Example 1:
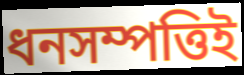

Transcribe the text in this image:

ধনসম্পত্তিই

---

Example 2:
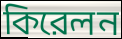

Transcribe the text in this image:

কিরেলন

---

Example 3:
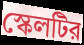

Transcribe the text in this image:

স্কেলটির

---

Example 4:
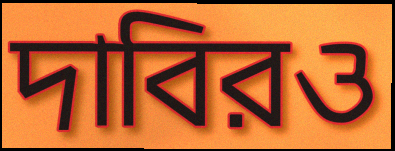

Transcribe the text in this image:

দাবিরও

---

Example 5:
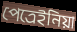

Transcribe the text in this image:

পেত্রেইনিয়া